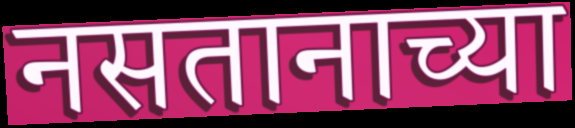
नसतानाच्या